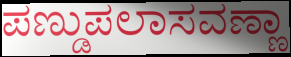
ಪಣ್ಡುಪಲಾಸವಣ್ಣಾ